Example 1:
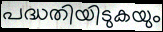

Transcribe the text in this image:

പദ്ധതിയിടുകയും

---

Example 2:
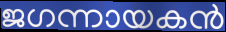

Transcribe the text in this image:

ജഗന്നായകൻ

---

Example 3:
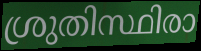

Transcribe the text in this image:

ശ്രുതിസ്ഥിരാ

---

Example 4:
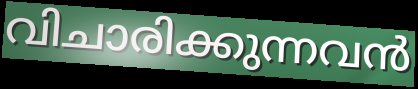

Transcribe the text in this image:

വിചാരിക്കുന്നവൻ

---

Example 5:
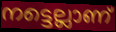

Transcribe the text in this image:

നട്ടെല്ലാണ്